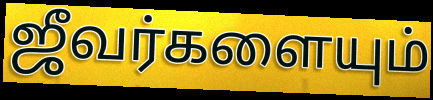
ஜீவர்களையும்